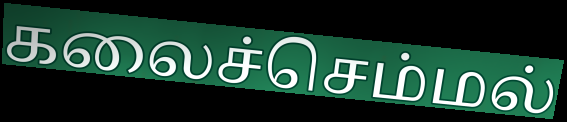
கலைச்செம்மல்